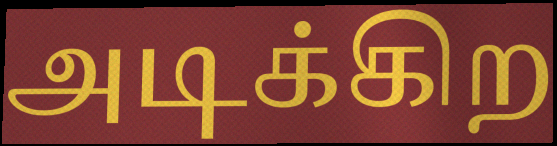
அடிக்கிற